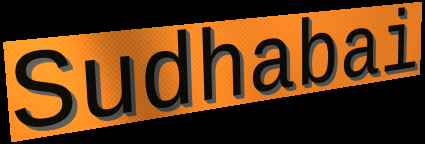
Sudhabai